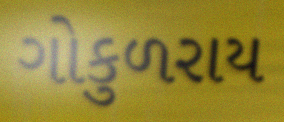
ગોકુળરાય